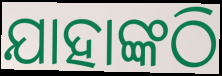
ଯାହାଙ୍କଠି